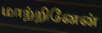
மாற்றினேன்